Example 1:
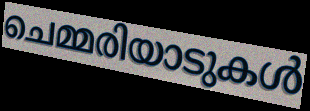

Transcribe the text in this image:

ചെമ്മരിയാടുകൾ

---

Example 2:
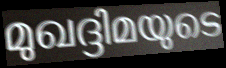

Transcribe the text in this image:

മുഖദ്ദിമയുടെ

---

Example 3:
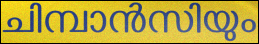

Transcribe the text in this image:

ചിമ്പാൻസിയും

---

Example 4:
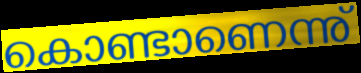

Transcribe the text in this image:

കൊണ്ടാണെന്നു്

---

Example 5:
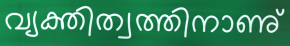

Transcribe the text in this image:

വ്യക്തിത്വത്തിനാണു്